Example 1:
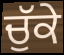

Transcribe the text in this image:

ਚੁੱਕੇ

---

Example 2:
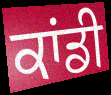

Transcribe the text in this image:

ਕਾਂਡੀ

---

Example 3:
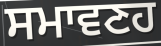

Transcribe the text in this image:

ਸਮਾਵਣਹ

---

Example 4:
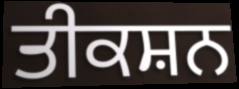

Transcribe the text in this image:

ਤੀਕਸ਼ਨ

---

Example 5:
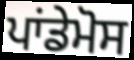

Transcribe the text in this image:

ਪਾਂਡੇਮੋਸ